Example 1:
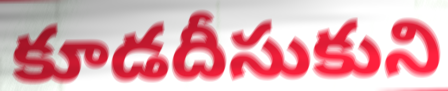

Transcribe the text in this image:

కూడదీసుకుని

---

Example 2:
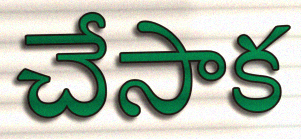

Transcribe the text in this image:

చేసాక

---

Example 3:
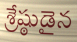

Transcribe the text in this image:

శ్రేష్ఠుడైన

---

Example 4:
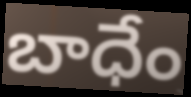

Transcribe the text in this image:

బాధేం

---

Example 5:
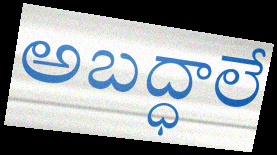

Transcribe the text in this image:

అబద్ధాలే